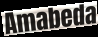
Amabeda